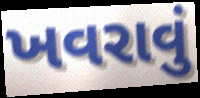
ખવરાવું